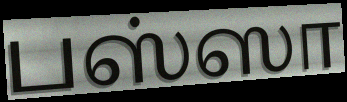
பஸ்ஸா